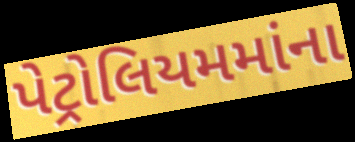
પેટ્રોલિયમમાંના